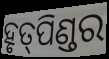
ହୃତ୍‍ପିଣ୍ଡର